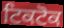
ਟਿਕਟੋਕ